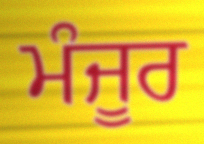
ਮੰਜੂਰ